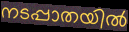
നടപ്പാതയിൽ